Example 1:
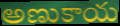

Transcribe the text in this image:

అణుకాయ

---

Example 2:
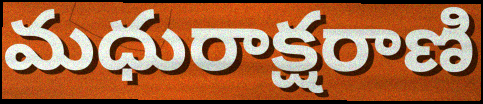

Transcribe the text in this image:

మధురాక్షరాణి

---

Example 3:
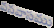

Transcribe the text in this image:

వనవాసము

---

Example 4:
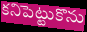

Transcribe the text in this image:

కనిపెట్టుకొను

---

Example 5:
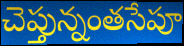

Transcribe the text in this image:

చెప్తున్నంతసేపూ